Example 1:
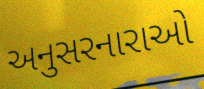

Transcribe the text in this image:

અનુસરનારાઓ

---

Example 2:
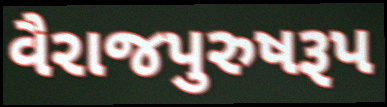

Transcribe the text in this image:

વૈરાજપુરુષરૂપ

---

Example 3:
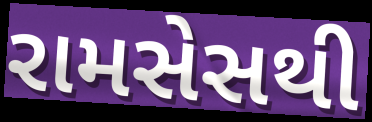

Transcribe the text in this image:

રામસેસથી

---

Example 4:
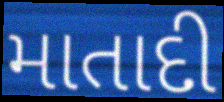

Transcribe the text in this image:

માતાદી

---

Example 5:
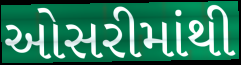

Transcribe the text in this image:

ઓસરીમાંથી